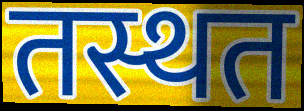
तस्थत